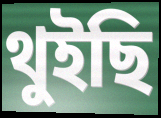
থুইছি